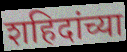
शहिदांच्या